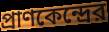
প্রাণকেন্দ্রের